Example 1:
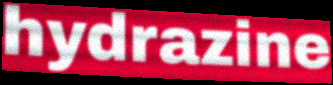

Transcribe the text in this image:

hydrazine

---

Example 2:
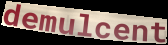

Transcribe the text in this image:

demulcent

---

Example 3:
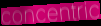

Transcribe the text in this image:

concentric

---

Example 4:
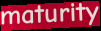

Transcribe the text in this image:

maturity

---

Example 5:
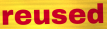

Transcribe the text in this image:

reused